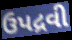
ઉપદ્રવી